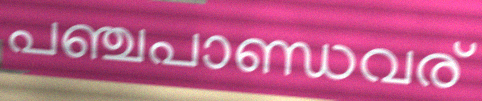
പഞ്ചപാണ്ഡവര്